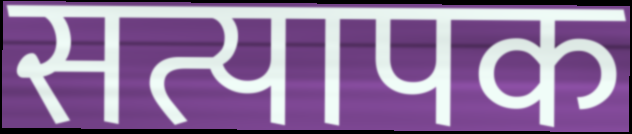
सत्यापक